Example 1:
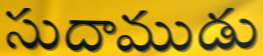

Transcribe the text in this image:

సుదాముడు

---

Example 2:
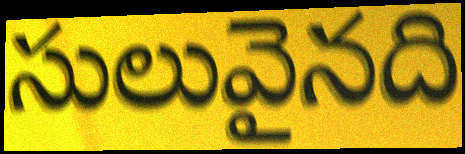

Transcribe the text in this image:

సులువైనది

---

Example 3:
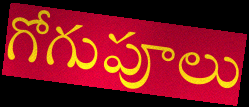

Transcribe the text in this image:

గోగుపూలు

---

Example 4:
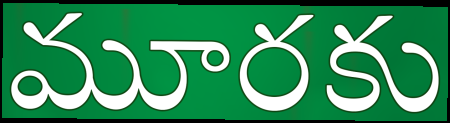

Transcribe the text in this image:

మూరకు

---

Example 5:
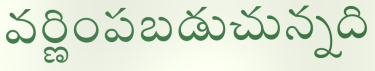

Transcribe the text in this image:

వర్ణింపబడుచున్నది